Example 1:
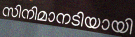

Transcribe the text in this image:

സിനിമാനടിയായി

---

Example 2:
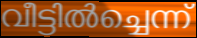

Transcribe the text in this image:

വീട്ടിൽച്ചെന്ന്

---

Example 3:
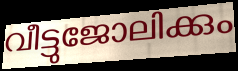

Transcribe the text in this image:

വീട്ടുജോലിക്കും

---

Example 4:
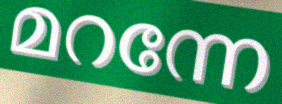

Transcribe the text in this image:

മറന്നേ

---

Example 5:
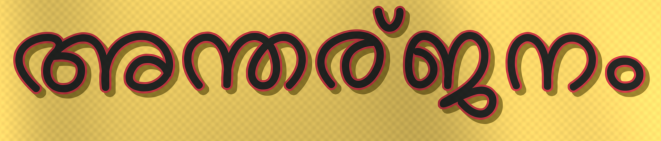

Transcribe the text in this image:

അന്തര്ജനം